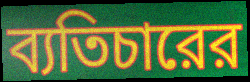
ব্যতিচারের